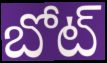
బోట్